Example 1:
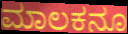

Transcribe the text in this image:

ಮಾಲಕನೂ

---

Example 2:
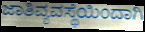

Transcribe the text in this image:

ಜಾತಿವ್ಯವಸ್ಥೆಯಿಂದಾಗಿ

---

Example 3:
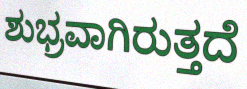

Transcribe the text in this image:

ಶುಭ್ರವಾಗಿರುತ್ತದೆ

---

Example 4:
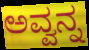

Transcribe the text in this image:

ಅವ್ವನ್ನ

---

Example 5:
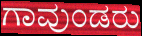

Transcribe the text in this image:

ಗಾವುಂಡರು